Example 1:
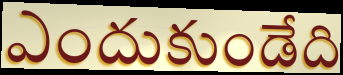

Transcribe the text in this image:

ఎందుకుండేది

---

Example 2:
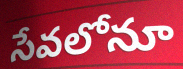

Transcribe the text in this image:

సేవలోనూ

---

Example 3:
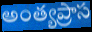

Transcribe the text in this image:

అంత్యప్రాస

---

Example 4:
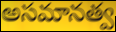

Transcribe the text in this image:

అసమానత్వ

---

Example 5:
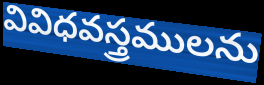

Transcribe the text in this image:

వివిధవస్త్రములను